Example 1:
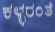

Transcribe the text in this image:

ಕಳ್ಳರಂತೆ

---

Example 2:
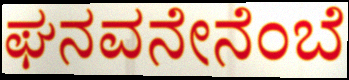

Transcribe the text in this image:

ಘನವನೇನೆಂಬೆ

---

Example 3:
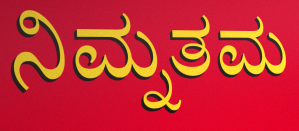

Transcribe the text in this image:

ನಿಮ್ನತಮ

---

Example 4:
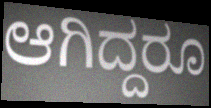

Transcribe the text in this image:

ಆಗಿದ್ದರೂ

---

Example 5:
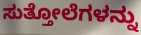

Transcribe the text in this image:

ಸುತ್ತೋಲೆಗಳನ್ನು